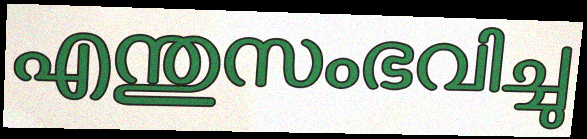
എന്തുസംഭവിച്ചു